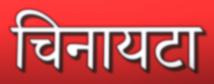
चिनायटा